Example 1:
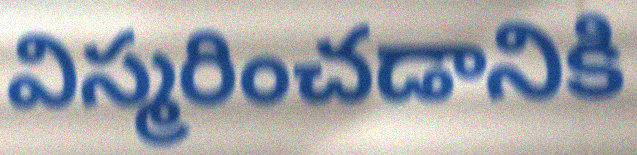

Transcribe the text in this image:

విస్మరించడానికి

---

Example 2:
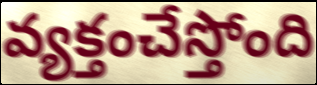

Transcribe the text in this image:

వ్యక్తంచేస్తోంది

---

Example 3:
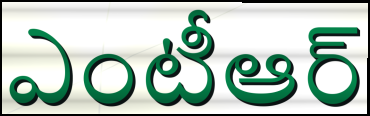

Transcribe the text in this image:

ఎంటీఆర్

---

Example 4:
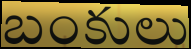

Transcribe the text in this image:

బంకులు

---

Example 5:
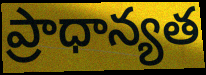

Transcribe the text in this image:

ప్రాధాన్యత